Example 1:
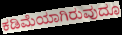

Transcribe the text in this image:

ಕಡಿಮೆಯಾಗಿರುವುದೂ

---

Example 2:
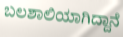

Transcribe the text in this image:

ಬಲಶಾಲಿಯಾಗಿದ್ದಾನೆ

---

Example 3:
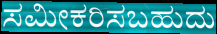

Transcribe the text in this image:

ಸಮೀಕರಿಸಬಹುದು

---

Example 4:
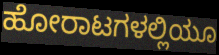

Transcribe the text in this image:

ಹೋರಾಟಗಳಲ್ಲಿಯೂ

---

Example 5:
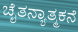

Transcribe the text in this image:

ಚೈತನ್ಯಾತ್ಮಕನೆ